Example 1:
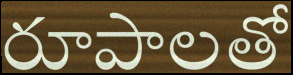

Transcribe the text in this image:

రూపాలతో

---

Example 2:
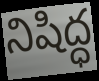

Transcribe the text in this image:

నిషిద్ధ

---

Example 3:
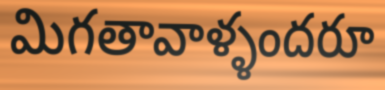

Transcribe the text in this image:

మిగతావాళ్ళందరూ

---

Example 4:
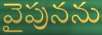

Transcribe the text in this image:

వైపునను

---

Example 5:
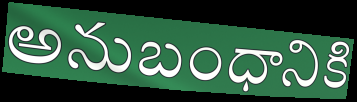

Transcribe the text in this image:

అనుబంధానికి